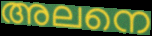
അലനെ